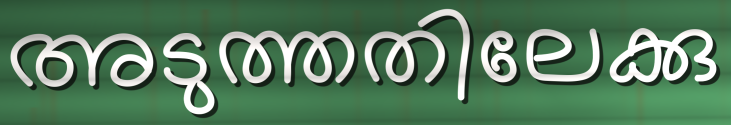
അടുത്തതിലേക്കു